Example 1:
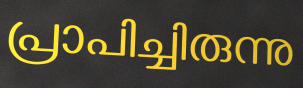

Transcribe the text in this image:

പ്രാപിച്ചിരുന്നു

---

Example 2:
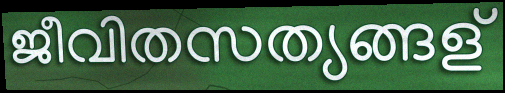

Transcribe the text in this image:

ജീവിതസത്യങ്ങള്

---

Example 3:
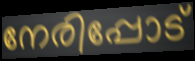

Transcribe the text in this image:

നേരിപ്പോട്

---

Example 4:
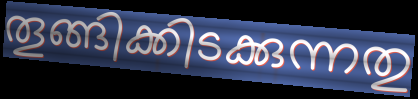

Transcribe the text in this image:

തൂങ്ങിക്കിടക്കുന്നതു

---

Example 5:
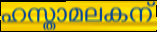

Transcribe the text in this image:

ഹസ്താമലകന്